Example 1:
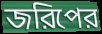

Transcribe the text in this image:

জরিপের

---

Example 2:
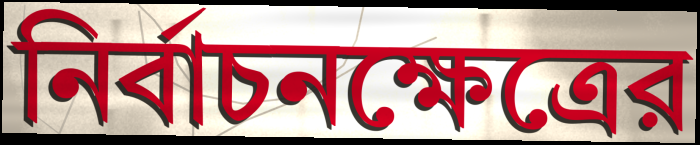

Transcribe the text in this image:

নির্বাচনক্ষেত্রের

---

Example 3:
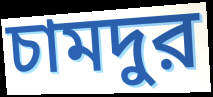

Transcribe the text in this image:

চামদুর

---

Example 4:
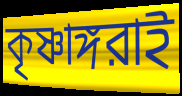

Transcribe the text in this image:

কৃষ্ণাঙ্গরাই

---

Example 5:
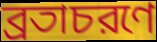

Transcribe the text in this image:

ব্রতাচরণে